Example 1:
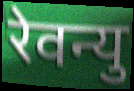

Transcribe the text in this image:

रेवन्यु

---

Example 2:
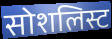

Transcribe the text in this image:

सोशलिस्‍ट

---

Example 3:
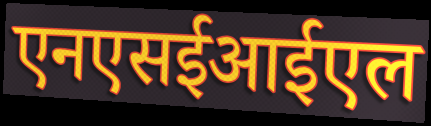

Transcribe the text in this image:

एनएसईआईएल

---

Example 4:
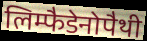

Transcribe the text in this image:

लिम्फैडेनोपैथी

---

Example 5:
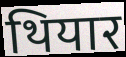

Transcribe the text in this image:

थियार